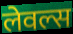
लेवल्स